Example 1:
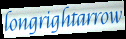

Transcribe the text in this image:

longrightarrow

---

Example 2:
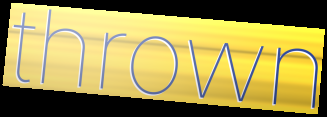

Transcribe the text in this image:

thrown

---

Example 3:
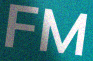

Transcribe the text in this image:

FM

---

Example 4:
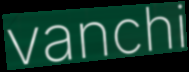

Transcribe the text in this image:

vanchi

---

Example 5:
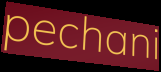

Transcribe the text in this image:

pechani